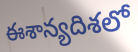
ఈశాన్యదిశలో